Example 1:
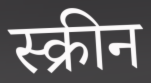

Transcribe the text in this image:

स्क्रीन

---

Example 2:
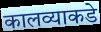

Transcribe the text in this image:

कालव्याकडे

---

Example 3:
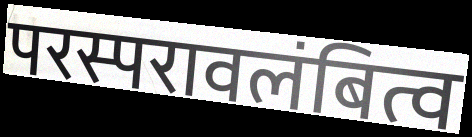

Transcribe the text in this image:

परस्परावलंबित्व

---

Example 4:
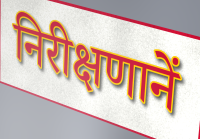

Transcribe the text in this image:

निरीक्षणानें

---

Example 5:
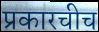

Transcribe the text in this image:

प्रकारचीच